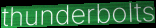
thunderbolts